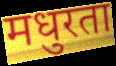
मधुरता